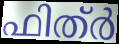
ഫിത്ർ